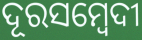
ଦୂରସମ୍ବେଦୀ